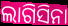
ଲାଗିସିନା